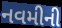
નવમીની